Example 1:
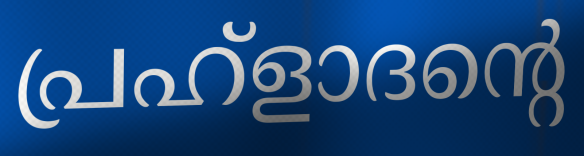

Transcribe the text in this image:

പ്രഹ്ളാദന്റെ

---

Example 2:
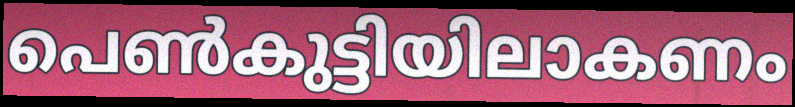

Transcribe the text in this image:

പെൺകുട്ടിയിലാകണം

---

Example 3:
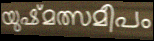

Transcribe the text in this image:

യുഷ്മത്സമീപം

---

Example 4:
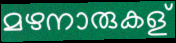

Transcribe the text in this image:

മഴനാരുകള്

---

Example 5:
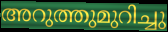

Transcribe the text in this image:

അറുത്തുമുറിച്ചു